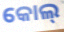
କୋଲ୍